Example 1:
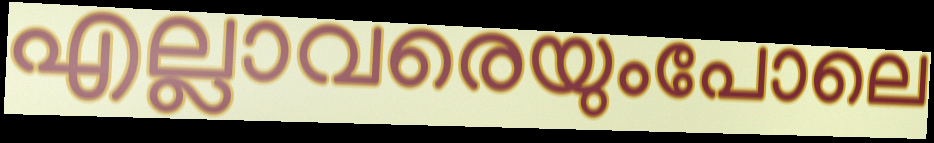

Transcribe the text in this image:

എല്ലാവരെയുംപോലെ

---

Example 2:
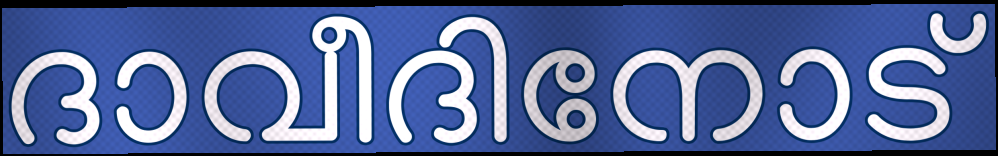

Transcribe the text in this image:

ദാവീദിനോട്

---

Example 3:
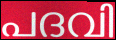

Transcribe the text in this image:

പദവി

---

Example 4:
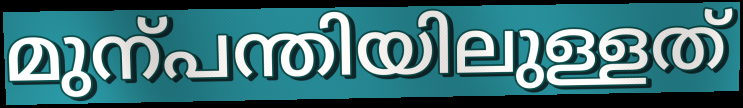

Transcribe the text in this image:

മുന്പന്തിയിലുള്ളത്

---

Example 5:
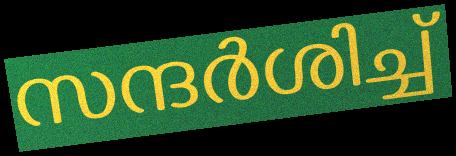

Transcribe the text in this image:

സന്ദർശിച്ച്